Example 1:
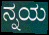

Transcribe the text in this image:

ನ್ನಯ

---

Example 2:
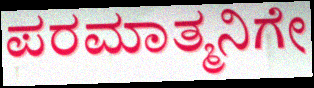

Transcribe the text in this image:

ಪರಮಾತ್ಮನಿಗೇ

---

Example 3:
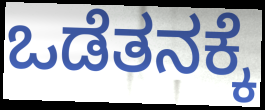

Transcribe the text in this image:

ಒಡೆತನಕ್ಕೆ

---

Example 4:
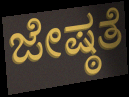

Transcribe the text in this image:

ಜೇಷ್ಠತೆ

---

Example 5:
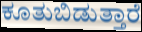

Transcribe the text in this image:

ಕೂತುಬಿಡುತ್ತಾರೆ